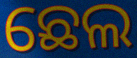
ଛେଲ